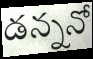
డన్ననో